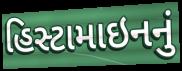
હિસ્ટામાઇનનું